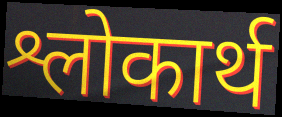
श्लोकार्थ